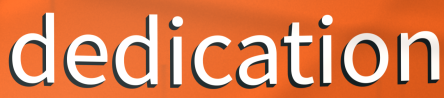
dedication